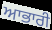
ਆਭਾਰੀ